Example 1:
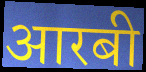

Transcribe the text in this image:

आरबी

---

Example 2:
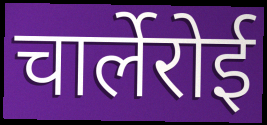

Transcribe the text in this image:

चार्लेरोई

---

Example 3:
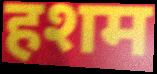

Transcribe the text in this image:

हशम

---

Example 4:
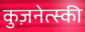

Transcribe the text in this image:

कुज़नेत्स्की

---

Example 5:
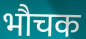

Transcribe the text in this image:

भौचक